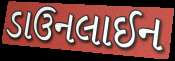
ડાઉનલાઈન